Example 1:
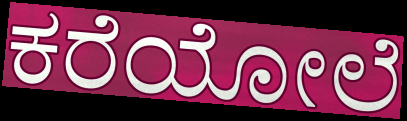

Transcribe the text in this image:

ಕರೆಯೋಲೆ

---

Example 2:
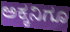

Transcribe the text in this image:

ಅಕ್ಕನಿಗೂ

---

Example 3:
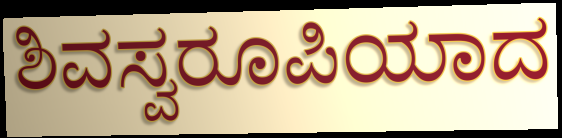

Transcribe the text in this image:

ಶಿವಸ್ವರೂಪಿಯಾದ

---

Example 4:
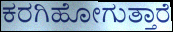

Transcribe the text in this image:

ಕರಗಿಹೋಗುತ್ತಾರೆ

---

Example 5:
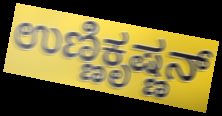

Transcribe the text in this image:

ಉಣ್ಣಿಕೃಷ್ಣನ್